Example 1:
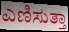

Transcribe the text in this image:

ಎಣಿಸುತ್ತಾ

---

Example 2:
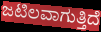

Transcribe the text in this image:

ಜಟಿಲವಾಗುತ್ತಿದೆ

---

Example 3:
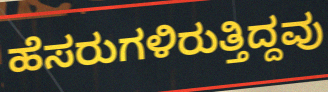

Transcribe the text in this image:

ಹೆಸರುಗಳಿರುತ್ತಿದ್ದವು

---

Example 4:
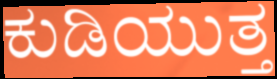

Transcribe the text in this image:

ಕುಡಿಯುತ್ತ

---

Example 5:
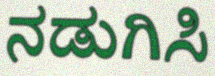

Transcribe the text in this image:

ನಡುಗಿಸಿ